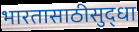
भारतासाठीसुद्धा